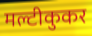
मल्टीकुकर